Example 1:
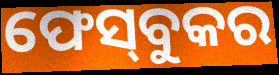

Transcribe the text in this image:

ଫେସ୍‌ବୁକର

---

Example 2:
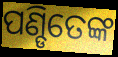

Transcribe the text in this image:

ପଣ୍ଡିତେଙ୍କ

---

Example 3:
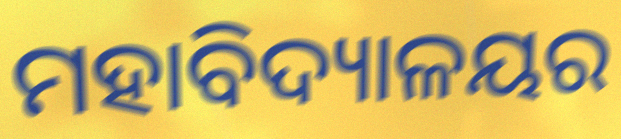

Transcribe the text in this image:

ମହାବିଦ୍ୟାଳୟର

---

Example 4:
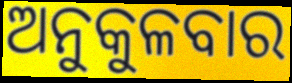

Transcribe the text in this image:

ଅନୁକୁଳବାର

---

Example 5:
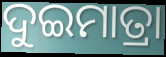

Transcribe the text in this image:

ଦୁଇମାତ୍ରା